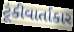
ટૂંકીવાર્તાકાર